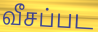
வீசப்பட